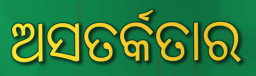
ଅସତର୍କତାର